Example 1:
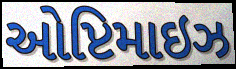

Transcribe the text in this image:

ઓપ્ટિમાઇઝ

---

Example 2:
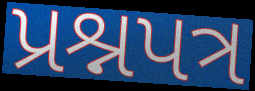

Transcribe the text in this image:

પ્રશ્નપત્ર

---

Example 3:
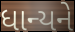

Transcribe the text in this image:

ધાન્યને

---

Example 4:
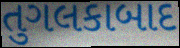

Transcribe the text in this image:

તુગલકાબાદ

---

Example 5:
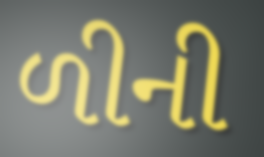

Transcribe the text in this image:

ળીની